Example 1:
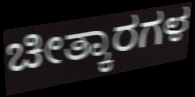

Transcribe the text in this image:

ಚೀತ್ಕಾರಗಳ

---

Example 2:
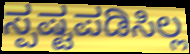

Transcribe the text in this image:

ಸ್ಪಷ್ಟಪಡಿಸಿಲ್ಲ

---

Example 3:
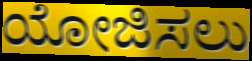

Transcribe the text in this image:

ಯೋಜಿಸಲು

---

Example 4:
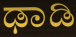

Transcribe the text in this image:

ಢಾಡಿ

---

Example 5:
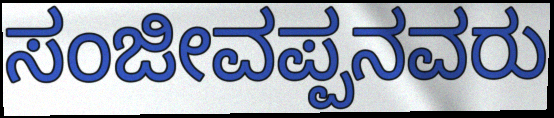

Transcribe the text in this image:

ಸಂಜೀವಪ್ಪನವರು